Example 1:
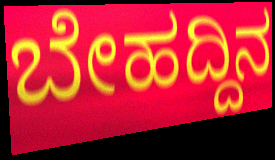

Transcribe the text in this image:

ಬೇಹದ್ದಿನ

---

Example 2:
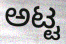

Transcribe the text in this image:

ಅಟ್ಟ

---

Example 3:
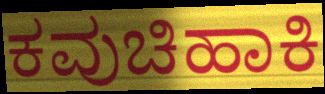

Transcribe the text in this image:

ಕವುಚಿಹಾಕಿ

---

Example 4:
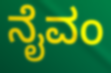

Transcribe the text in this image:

ನೈವಂ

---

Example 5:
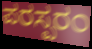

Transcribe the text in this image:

ಪರಸ್ಪರಂ